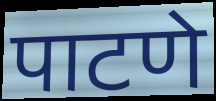
पाटणे